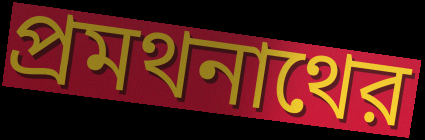
প্রমথনাথের